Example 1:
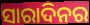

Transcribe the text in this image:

ସାରାଦିନର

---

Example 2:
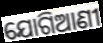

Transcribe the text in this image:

ଯୋଗିଆଣୀ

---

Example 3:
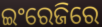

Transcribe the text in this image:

ଇଂରେଜିରେ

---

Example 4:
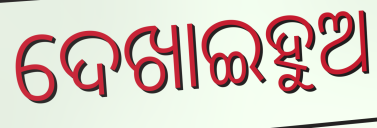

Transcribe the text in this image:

ଦେଖାଇହୁଅ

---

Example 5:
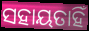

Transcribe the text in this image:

ସହାୟତାହିଁ